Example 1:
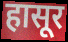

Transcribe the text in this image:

हासूर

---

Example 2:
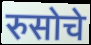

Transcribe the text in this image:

रुसोचे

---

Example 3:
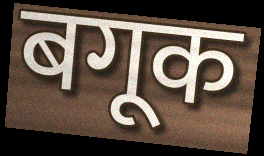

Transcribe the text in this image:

बगूक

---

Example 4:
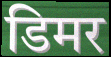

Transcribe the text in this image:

डिमर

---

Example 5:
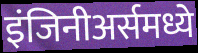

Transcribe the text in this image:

इंजिनीअर्समध्ये